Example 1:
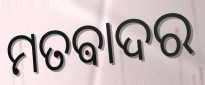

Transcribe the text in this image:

ମତଵାଦର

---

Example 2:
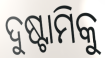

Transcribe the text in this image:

ଦୁଷ୍ଟାମିକୁ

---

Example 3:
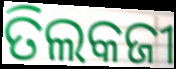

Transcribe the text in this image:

ତିଲକଜୀ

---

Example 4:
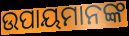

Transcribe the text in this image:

ଉପାୟମାନଙ୍କ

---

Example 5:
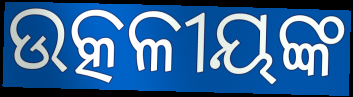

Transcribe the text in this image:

ଉତ୍କଳୀୟଙ୍କ